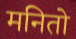
मनितो